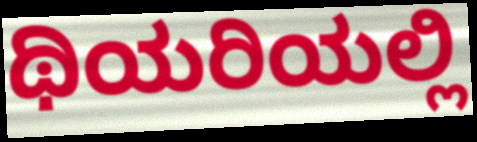
ಥಿಯರಿಯಲ್ಲಿ